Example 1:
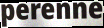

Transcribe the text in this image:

perenne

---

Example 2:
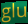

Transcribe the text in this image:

glu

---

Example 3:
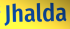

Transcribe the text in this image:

Jhalda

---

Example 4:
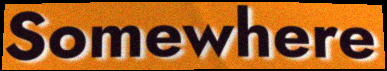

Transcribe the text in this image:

Somewhere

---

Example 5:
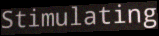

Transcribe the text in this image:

Stimulating